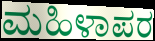
ಮಹಿಳಾಪರ